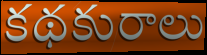
కథకురాలు